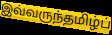
இவ்வருந்தமிழ்ப்